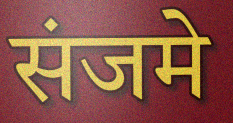
संजमे